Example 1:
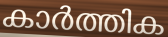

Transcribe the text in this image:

കാർത്തിക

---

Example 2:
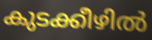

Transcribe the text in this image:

കുടക്കീഴിൽ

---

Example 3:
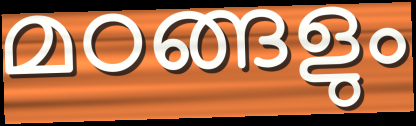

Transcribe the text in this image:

മഠങ്ങളും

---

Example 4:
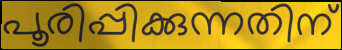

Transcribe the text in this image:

പൂരിപ്പിക്കുന്നതിന്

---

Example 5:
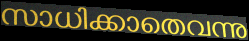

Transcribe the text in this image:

സാധിക്കാതെവന്നു